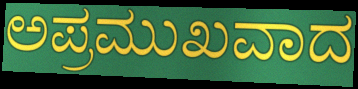
ಅಪ್ರಮುಖವಾದ